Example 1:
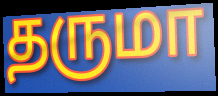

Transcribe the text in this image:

தருமா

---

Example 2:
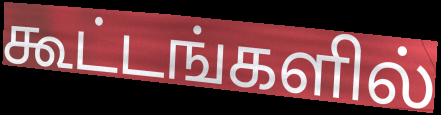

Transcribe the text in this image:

கூட்டங்களில்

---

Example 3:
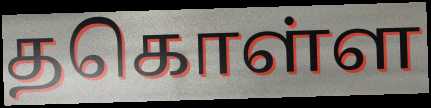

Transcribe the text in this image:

தகொள்ள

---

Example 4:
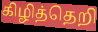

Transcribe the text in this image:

கிழித்தெறி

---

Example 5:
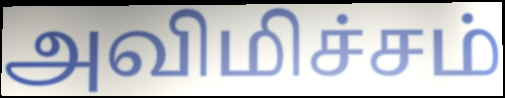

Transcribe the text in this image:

அவிமிச்சம்